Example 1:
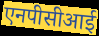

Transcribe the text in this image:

एनपीसीआई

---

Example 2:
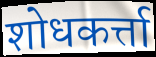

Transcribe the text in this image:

शोधकर्त्ता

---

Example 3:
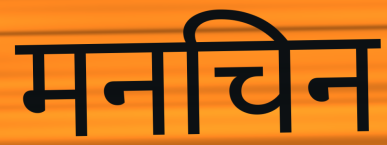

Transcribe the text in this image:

मनचिन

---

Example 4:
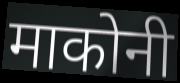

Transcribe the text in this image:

माकोनी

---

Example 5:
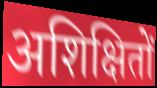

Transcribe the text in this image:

अशिक्षितों